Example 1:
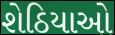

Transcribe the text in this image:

શેઠિયાઓ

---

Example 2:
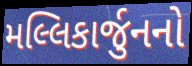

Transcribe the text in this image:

મલ્લિકાર્જુનનો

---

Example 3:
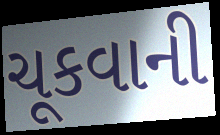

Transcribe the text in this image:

ચૂકવાની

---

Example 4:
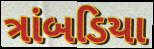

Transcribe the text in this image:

ત્રાંબડિયા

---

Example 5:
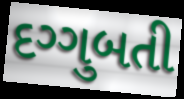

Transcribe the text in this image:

દગ્ગુબતી